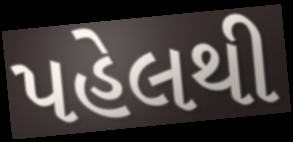
પહેલથી